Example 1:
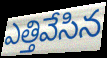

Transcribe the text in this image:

ఎత్తివేసిన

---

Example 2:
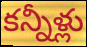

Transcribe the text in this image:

కన్నీళ్లు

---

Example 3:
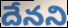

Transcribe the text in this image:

దేనని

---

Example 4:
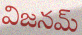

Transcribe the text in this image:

విజనమ్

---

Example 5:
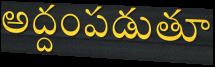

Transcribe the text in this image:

అద్దంపడుతూ